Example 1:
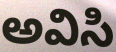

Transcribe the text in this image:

అవిసి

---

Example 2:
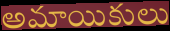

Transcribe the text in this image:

అమాయికులు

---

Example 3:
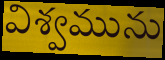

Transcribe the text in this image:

విశ్వమును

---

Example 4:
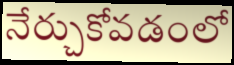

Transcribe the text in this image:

నేర్చుకోవడంలో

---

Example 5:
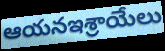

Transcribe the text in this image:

ఆయనఇశ్రాయేలు